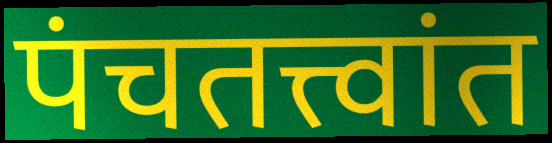
पंचतत्त्वांत